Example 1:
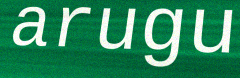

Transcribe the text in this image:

arugu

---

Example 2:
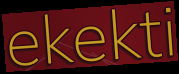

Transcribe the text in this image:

ekekti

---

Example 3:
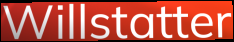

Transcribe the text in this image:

Willstatter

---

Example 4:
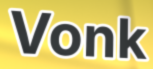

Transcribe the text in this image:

Vonk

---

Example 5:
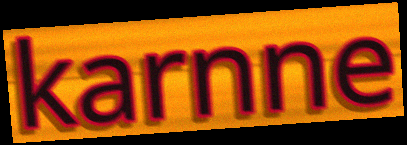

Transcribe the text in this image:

karnne